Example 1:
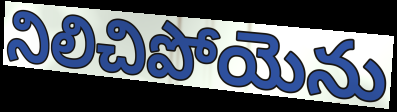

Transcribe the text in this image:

నిలిచిపోయెను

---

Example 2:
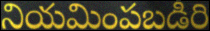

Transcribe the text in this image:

నియమింపబడిరి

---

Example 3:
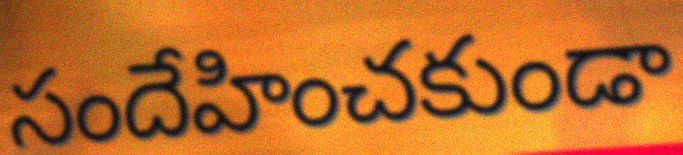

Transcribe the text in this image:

సందేహించకుండా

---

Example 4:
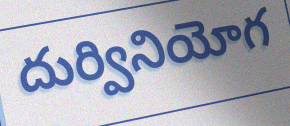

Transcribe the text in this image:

దుర్వినియోగ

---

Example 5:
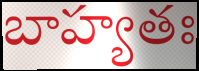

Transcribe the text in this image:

బాహ్యతః